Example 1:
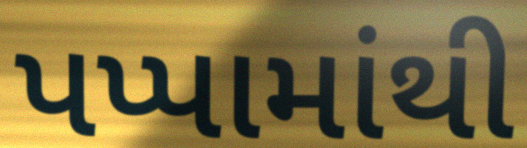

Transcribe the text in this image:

પપ્પામાંથી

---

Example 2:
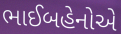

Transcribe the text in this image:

ભાઈબહેનોએ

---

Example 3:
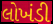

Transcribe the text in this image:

લોખંડી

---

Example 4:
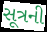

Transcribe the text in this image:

સૂત્રની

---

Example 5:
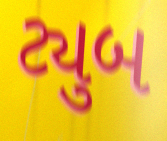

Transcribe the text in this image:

ટ્યુબ